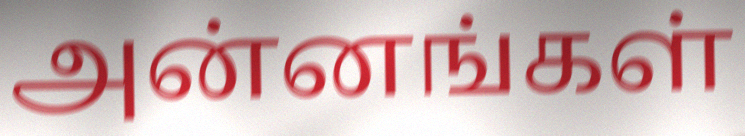
அன்னங்கள்